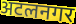
अटलनगर